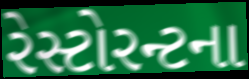
રેસ્ટોરન્ટના